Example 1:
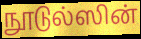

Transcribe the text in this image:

நூடுல்ஸின்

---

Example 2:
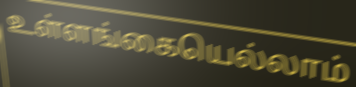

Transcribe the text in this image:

உள்ளங்கையெல்லாம்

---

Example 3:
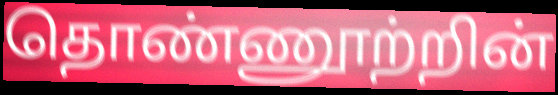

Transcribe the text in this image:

தொண்ணூற்றின்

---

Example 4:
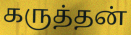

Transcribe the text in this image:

கருத்தன்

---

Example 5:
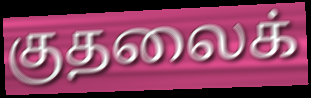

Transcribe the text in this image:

குதலைக்